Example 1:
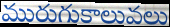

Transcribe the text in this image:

మురుగుకాలువలు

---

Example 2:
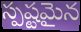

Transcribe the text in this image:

స్పష్టమైన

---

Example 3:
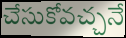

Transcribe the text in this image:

చేసుకోవచ్చనే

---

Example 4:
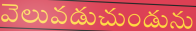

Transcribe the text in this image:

వెలువడుచుండును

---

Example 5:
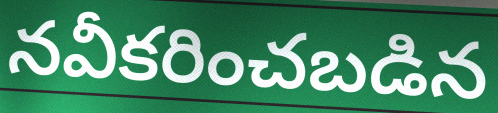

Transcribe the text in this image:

నవీకరించబడిన